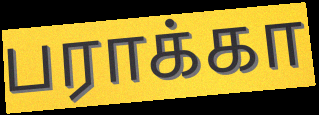
பராக்கா